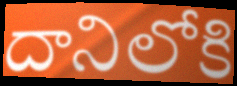
దానిలోకి